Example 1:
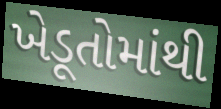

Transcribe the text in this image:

ખેડૂતોમાંથી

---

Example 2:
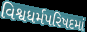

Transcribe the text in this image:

વિશ્વધર્મપરિષદમાં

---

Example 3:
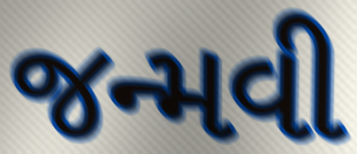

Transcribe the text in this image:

જન્મવી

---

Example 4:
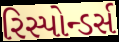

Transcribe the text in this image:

રિસ્પોન્ડર્સ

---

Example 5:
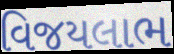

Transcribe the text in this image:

વિજયલાભ